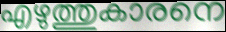
എഴുത്തുകാരനെ